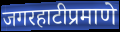
जगरहाटीप्रमाणे